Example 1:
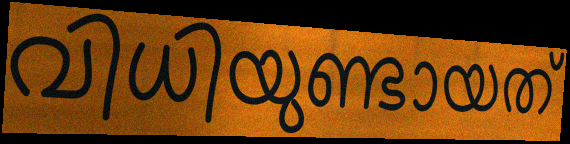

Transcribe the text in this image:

വിധിയുണ്ടായത്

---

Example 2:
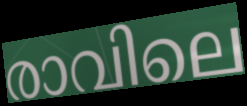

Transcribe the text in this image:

രാവിലെ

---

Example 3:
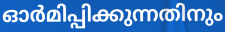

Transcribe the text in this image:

ഓർമിപ്പിക്കുന്നതിനും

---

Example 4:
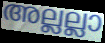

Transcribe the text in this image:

അല്ലല്ലാ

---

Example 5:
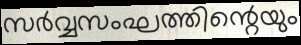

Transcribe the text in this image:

സർവ്വസംഘത്തിന്റെയും